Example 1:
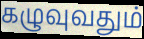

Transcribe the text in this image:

கழுவுவதும்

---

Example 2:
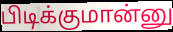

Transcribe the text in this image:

பிடிக்குமான்னு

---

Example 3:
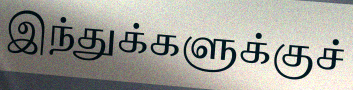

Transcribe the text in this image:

இந்துக்களுக்குச்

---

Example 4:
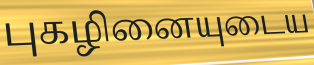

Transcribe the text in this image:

புகழினையுடைய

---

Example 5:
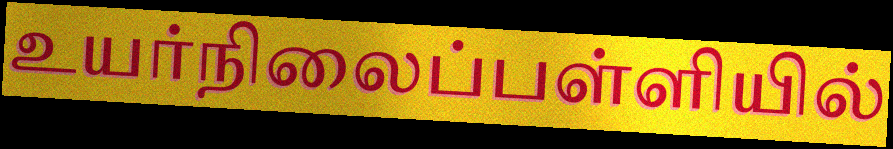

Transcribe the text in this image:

உயர்நிலைப்பள்ளியில்